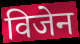
विजेन